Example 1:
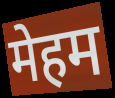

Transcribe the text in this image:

मेहम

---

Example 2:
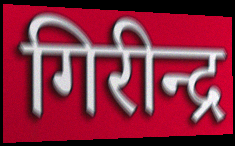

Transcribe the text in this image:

गिरीन्द्र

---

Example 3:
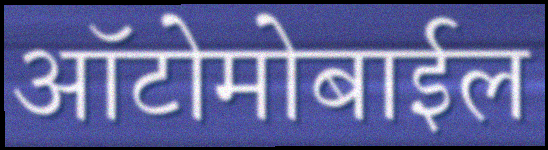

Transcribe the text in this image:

ऑटोमोबाईल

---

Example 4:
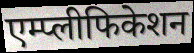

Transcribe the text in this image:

एम्प्लीफिकेशन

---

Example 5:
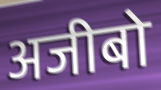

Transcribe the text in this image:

अजीबो